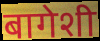
बागेशी